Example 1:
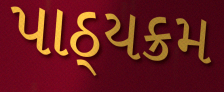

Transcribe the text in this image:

પાઠ્યક્રમ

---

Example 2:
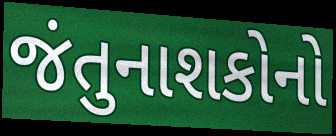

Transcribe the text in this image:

જંતુનાશકોનો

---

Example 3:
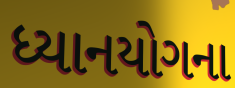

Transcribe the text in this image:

ધ્યાનયોગના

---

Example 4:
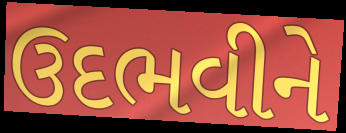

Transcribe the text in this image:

ઉદભવીને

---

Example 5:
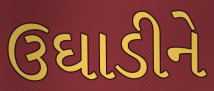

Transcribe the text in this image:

ઉઘાડીને